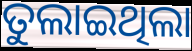
ତୁଲାଇଥିଲା